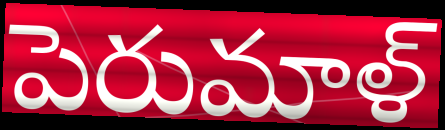
పెరుమాళ్